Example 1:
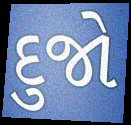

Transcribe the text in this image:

દુજો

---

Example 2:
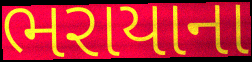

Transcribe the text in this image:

ભરાયાના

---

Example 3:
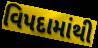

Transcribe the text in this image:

વિપદામાંથી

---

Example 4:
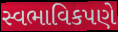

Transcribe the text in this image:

સ્વભાવિકપણે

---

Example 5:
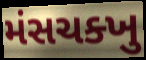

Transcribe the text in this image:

મંસચક્ખુ